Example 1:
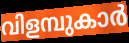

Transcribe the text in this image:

വിളമ്പുകാർ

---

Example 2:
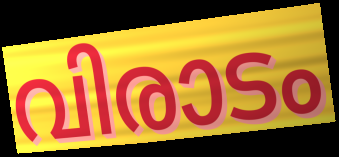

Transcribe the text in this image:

വിരാടം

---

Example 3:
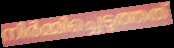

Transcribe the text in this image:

നിർമ്മിച്ചെടുത്തത്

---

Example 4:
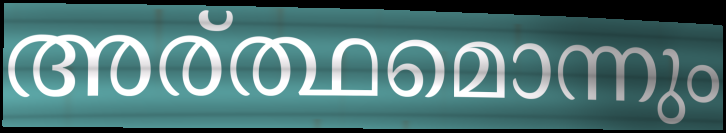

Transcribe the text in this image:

അര്ത്ഥമൊന്നും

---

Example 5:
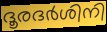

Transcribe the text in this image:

ദൂരദർശിനി